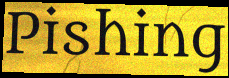
Pishing